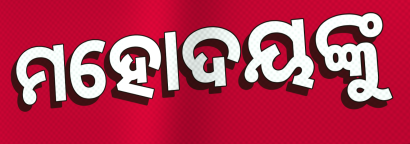
ମହୋଦୟଙ୍କୁ